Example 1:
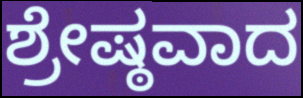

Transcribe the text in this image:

ಶ್ರೇಷ್ಠವಾದ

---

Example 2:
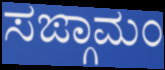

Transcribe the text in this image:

ಸಙ್ಗಾಮಂ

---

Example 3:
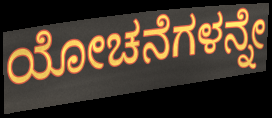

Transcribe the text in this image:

ಯೋಚನೆಗಳನ್ನೇ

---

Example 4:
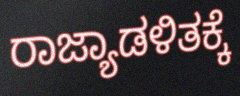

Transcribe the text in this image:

ರಾಜ್ಯಾಡಳಿತಕ್ಕೆ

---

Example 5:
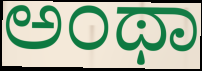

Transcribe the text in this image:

ಅಂಥಾ